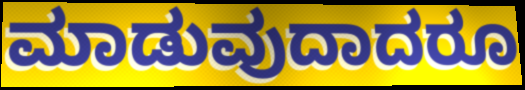
ಮಾಡುವುದಾದರೂ